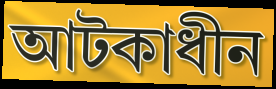
আটকাধীন